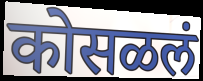
कोसळलं